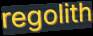
regolith